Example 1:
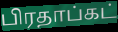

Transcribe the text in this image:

பிரதாப்கட்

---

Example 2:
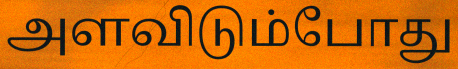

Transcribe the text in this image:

அளவிடும்போது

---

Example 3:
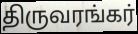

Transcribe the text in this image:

திருவரங்கர்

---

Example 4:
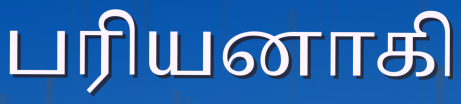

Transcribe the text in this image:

பரியனாகி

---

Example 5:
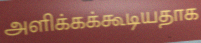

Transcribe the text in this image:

அளிக்கக்கூடியதாக